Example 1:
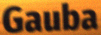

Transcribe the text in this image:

Gauba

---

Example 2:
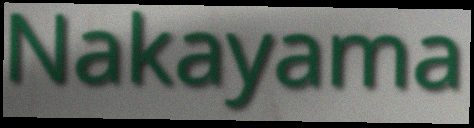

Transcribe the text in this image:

Nakayama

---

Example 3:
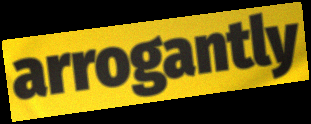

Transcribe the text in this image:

arrogantly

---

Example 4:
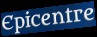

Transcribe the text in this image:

Epicentre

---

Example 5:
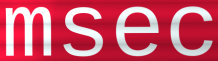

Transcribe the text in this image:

msec